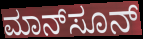
ಮಾನ್‌ಸೂನ್